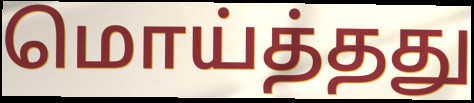
மொய்த்தது